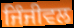
ਜਿੰਜੀਵਲ